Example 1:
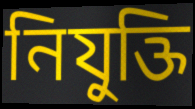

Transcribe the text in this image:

নিযুক্তি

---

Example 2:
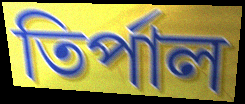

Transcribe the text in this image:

তিৰ্পাল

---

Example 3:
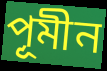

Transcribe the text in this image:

পূমীন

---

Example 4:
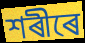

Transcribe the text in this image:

শৰীৰে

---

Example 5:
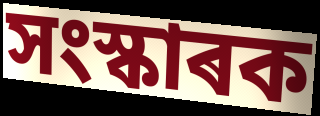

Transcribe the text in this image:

সংস্কাৰক